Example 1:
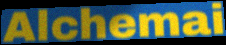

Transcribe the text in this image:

Alchemai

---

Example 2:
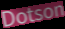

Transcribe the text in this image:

Dotson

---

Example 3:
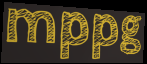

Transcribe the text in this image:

mppg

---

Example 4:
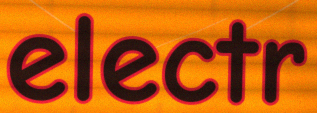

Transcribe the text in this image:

electr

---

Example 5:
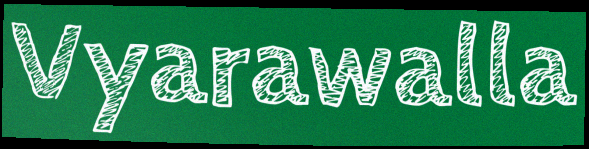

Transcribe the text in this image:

Vyarawalla